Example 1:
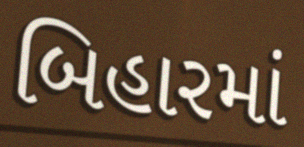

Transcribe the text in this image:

બિહારમાં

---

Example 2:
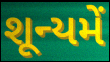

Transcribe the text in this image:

શૂન્યમેં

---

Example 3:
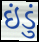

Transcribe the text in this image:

ઇંડું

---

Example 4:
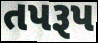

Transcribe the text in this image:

તપરૂપ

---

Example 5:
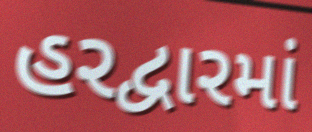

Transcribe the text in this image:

હરદ્વારમાં